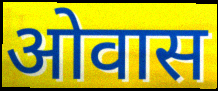
ओवास